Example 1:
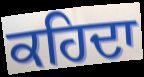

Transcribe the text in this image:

ਕਹਿਦਾ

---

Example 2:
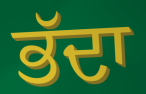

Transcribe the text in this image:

ਭੱਦਾ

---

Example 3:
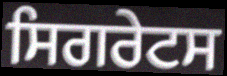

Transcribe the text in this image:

ਸਿਗਰੇਟਸ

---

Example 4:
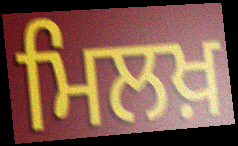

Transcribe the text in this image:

ਮਿਲਖ਼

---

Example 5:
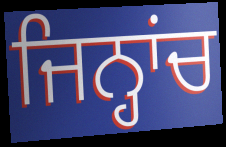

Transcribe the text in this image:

ਜਿਨ੍ਹਾਂਚ